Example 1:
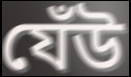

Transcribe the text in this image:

যেঁউ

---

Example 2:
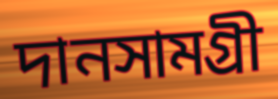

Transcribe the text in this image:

দানসামগ্রী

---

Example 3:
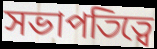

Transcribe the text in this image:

সভাপতিত্বে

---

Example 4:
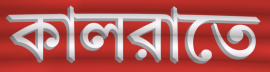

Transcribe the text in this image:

কালরাতে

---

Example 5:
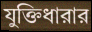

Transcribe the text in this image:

যুক্তিধারার